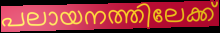
പലായനത്തിലേക്ക്